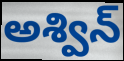
అశ్విన్